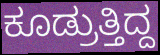
ಕೂಡ್ರುತ್ತಿದ್ದ